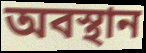
অবস্থান